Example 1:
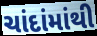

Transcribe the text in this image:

ચાંદાંમાંથી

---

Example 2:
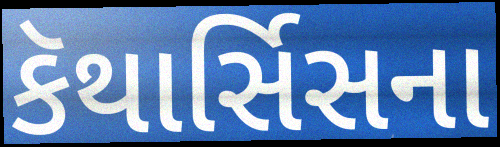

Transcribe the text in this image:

કૅથાર્સિસના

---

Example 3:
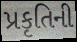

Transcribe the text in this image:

પ્રકૃતિની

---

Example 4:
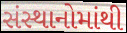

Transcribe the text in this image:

સંસ્થાનોમાંથી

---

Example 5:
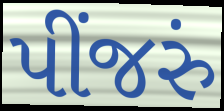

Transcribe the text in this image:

પીંજરું